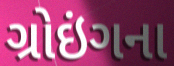
ગ્રોઇંગના